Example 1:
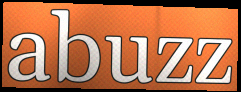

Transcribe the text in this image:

abuzz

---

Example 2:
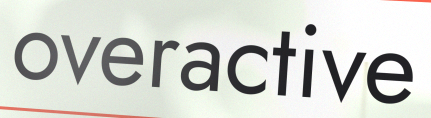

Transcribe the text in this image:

overactive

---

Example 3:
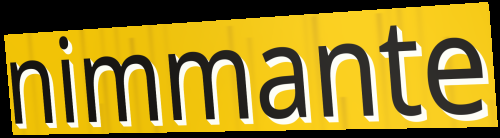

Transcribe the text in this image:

nimmante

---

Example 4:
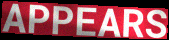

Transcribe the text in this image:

APPEARS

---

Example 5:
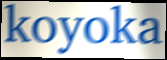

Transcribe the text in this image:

koyoka